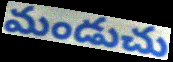
మండుచు